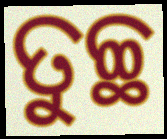
ତୁଚ୍ଛ